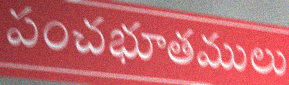
పంచభూతములు